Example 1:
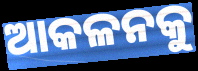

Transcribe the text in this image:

ଆକଳନକୁ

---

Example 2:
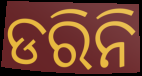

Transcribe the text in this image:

ଡରିନି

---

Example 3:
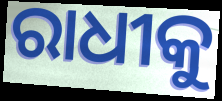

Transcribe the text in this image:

ରାଧୀକୁ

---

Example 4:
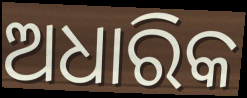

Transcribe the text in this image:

ଅଧାରିକ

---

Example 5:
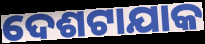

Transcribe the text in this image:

ଦେଶଟାଯାକ